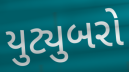
યુટ્યુબરો